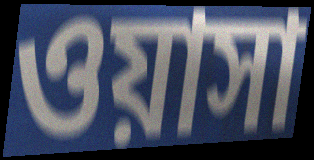
ওয়াসা